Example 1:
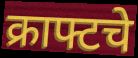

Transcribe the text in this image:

क्राफ्टचे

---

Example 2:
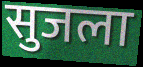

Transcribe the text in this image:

सुजला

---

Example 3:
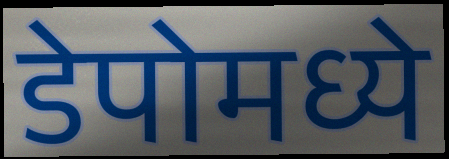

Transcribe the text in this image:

डेपोमध्ये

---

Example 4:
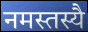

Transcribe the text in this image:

नमस्तस्यै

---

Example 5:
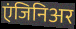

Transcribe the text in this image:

एंजिनिअर